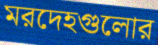
মরদেহগুলোর